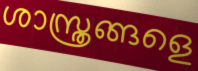
ശാസ്ത്രങ്ങളെ